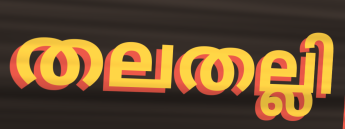
തലതല്ലി